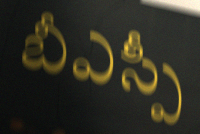
బీఎస్పీ